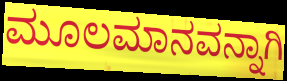
ಮೂಲಮಾನವನ್ನಾಗಿ